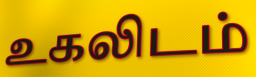
உகலிடம்